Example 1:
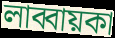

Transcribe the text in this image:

লাব্বায়কা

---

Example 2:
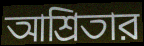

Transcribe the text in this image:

আশ্রিতার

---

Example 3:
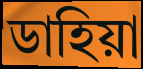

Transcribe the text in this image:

ডাহিয়া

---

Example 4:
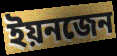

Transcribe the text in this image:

ইয়নজেন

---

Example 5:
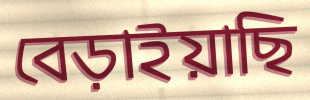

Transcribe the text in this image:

বেড়াইয়াছি